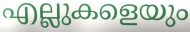
എല്ലുകളെയും